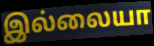
இல்லையா